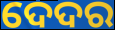
ଦେଦର